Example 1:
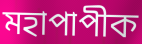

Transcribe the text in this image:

মহাপাপীক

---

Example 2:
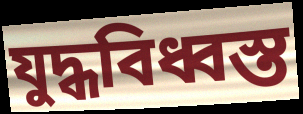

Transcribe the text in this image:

যুদ্ধবিধ্বস্ত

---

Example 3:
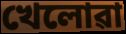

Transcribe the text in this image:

খেলোৱা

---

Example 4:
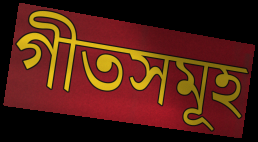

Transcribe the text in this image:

গীতসমূহ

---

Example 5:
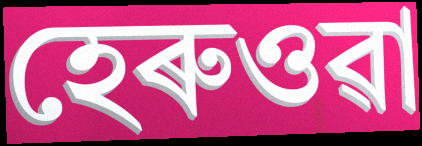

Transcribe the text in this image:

হেৰুওৱা